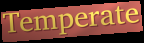
Temperate